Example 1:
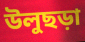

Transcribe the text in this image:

উলুছড়া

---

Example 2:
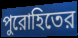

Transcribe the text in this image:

পুরোহিতের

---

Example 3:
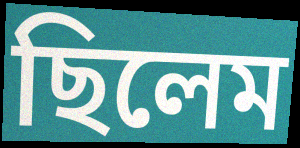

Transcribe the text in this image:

ছিলেম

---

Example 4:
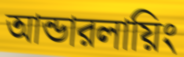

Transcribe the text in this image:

আন্ডারলায়িং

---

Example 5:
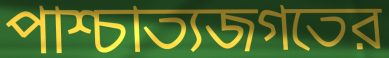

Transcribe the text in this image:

পাশ্চাত্যজগতের